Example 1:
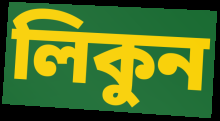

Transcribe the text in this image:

লিকুন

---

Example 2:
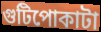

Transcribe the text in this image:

গুটিপোকাটা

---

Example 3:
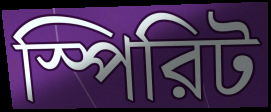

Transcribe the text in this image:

স্পিরিট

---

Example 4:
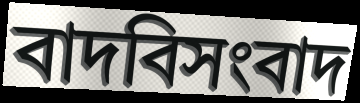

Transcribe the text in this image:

বাদবিসংবাদ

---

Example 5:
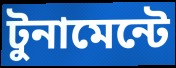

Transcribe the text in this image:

টুনামেন্টে